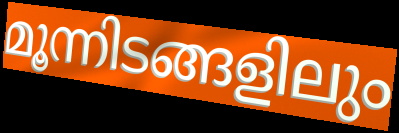
മൂന്നിടങ്ങളിലും